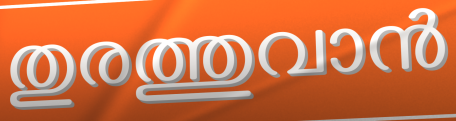
തുരത്തുവാൻ